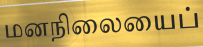
மனநிலையைப்